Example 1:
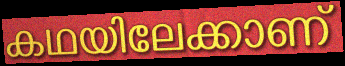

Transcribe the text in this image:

കഥയിലേക്കാണ്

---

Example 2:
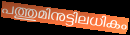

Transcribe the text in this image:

പത്തുമിനുട്ടിലധികം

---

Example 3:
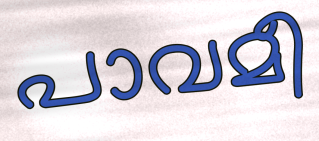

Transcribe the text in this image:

പാവമീ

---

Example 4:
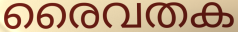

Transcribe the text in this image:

രൈവതക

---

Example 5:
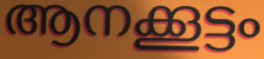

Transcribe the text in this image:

ആനക്കൂട്ടം